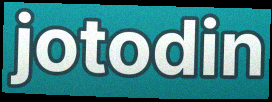
jotodin